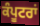
ਕੰਪੂਟਰਾਂ